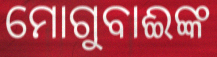
ମୋଗୁବାଈଙ୍କ